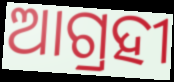
ଆଗ୍ରହୀ